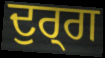
ਦੁਰ੍ਗ